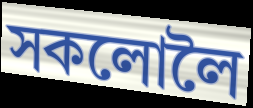
সকলোলৈ